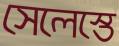
সেলেস্তে